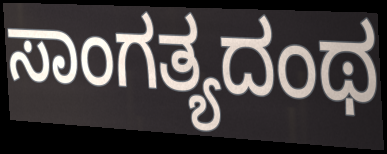
ಸಾಂಗತ್ಯದಂಥ